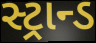
સ્ટ્રાન્ડ